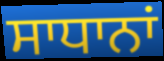
ਸਾਧਾਨਾਂ